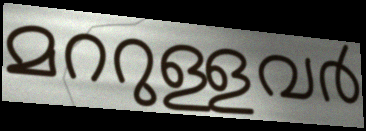
മററുള്ളവർ